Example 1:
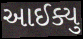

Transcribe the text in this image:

આઈક્યુ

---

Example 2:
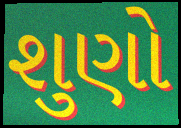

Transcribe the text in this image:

શુણો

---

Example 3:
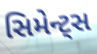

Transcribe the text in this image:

સિમેન્ટ્સ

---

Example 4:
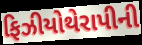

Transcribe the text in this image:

ફિઝીયોથેરાપીની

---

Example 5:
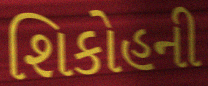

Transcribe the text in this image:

શિકોહની